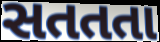
સતતતા